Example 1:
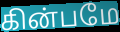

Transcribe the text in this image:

கின்பமே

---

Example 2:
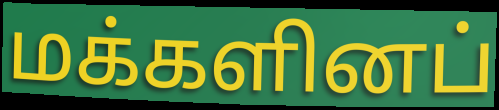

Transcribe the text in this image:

மக்களினப்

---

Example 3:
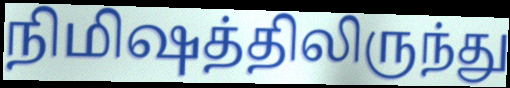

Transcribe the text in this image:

நிமிஷத்திலிருந்து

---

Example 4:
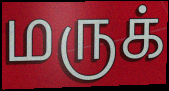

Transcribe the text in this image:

மருக்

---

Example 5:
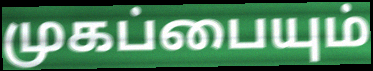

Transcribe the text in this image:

முகப்பையும்